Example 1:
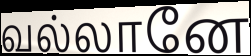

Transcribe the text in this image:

வல்லானே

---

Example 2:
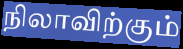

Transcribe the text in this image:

நிலாவிற்கும்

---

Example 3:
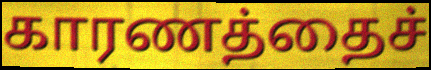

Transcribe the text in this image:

காரணத்தைச்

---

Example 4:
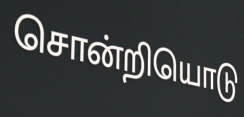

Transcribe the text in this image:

சொன்றியொடு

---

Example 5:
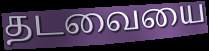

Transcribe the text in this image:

தடவையை